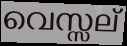
വെസ്സല്